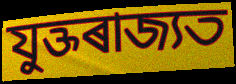
যুক্তৰাজ্যত